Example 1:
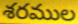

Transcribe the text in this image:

శరముల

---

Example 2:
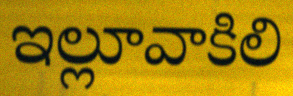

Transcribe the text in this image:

ఇల్లూవాకిలి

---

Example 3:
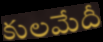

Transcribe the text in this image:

కులమేదీ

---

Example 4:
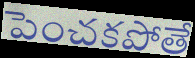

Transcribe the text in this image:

పెంచకపోతే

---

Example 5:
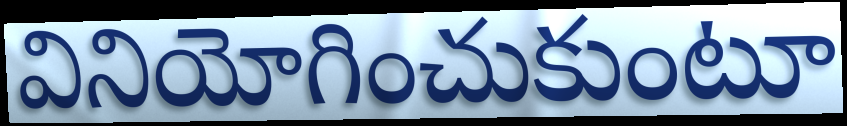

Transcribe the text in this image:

వినియోగించుకుంటూ